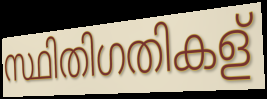
സ്ഥിതിഗതികള്